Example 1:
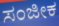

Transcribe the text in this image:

ಸಂಜೀಕ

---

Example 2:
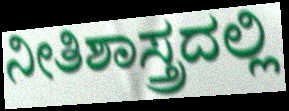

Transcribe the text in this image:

ನೀತಿಶಾಸ್ತ್ರದಲ್ಲಿ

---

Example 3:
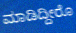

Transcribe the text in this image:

ಮಾಡಿದ್ದೀರೊ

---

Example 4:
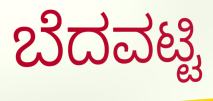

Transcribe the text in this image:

ಬೆದವಟ್ಟಿ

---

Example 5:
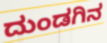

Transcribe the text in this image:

ದುಂಡಗಿನ